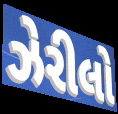
ઝેરીલો